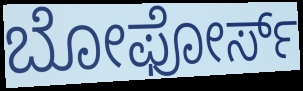
ಬೋಫೋರ್ಸ್